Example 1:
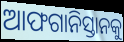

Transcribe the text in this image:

ଆଫଗାନିସ୍ତାନକୁ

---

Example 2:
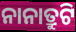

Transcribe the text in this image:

ନାନାତ୍ରୁଟି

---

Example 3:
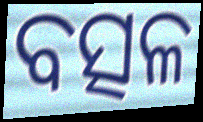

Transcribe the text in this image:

ବତ୍ସଳ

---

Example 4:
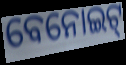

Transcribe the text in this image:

ବେନୋଇଟ୍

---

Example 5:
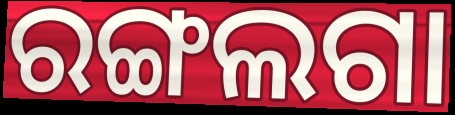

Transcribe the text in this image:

ରଙ୍ଗଲଗା